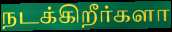
நடக்கிறீர்களா